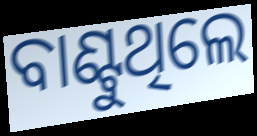
ବାଣ୍ଟୁଥିଲେ